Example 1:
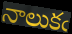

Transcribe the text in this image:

నాలుకఁ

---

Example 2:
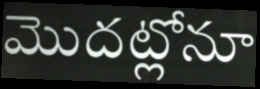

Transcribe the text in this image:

మొదట్లోనూ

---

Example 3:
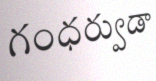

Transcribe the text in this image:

గంధర్వుడా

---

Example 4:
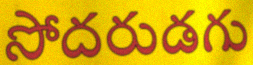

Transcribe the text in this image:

సోదరుడగు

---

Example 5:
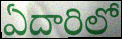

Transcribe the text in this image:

ఏదారిలో